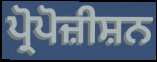
ਪ੍ਰੋਪੋਜ਼ੀਸ਼ਨ